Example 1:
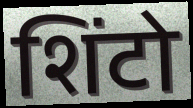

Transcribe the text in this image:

शिंटो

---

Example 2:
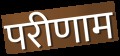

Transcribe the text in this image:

परीणाम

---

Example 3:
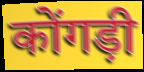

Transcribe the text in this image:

कोंगड़ी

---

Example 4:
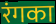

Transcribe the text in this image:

रंगका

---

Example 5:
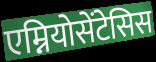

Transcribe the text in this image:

एम्नियोसेंटेसिस